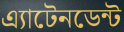
এ্যাটেনডেন্ট